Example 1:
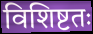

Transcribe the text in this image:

विशिष्टतः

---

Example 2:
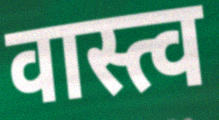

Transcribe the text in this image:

वास्त्व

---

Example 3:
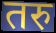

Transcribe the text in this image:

तरु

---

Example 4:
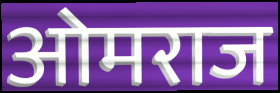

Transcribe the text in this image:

ओमराज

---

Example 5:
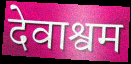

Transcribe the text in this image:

देवाश्वम